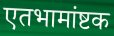
एतभामांष्टक